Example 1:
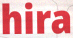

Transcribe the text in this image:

hira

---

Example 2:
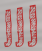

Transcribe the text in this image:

JJJ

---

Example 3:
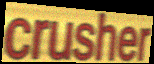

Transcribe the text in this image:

crusher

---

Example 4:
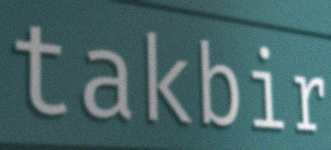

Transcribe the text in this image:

takbir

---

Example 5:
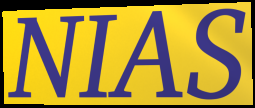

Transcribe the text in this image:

NIAS